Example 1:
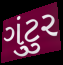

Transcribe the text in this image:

ગુંટુર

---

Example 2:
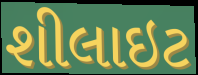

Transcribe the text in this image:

શીલાઇટ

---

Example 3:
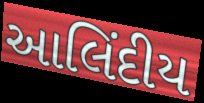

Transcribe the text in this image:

આલિંદીય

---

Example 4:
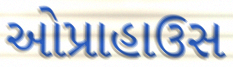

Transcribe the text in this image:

ઓપ્રાહાઉસ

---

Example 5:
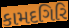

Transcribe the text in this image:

કામદગિરિ